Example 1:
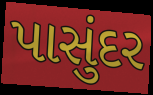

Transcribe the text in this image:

પાસુંદર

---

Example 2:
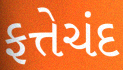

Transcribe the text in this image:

ફત્તેચંદ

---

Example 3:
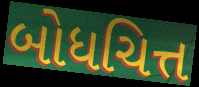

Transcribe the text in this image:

બોધચિત્ત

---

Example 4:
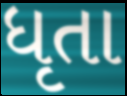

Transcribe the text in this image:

ધૃતા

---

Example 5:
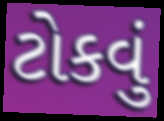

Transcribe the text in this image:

ટોકવું